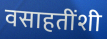
वसाहतींशी